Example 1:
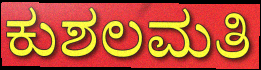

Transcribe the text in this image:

ಕುಶಲಮತಿ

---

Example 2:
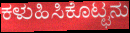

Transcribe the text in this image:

ಕಳುಹಿಸಿಕೊಟ್ಟನು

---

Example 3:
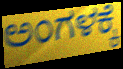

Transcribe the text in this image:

ಅಂಗಳಕ್ಕೆ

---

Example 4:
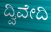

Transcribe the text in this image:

ದ್ವಿವೇದಿ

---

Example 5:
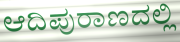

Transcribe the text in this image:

ಆದಿಪುರಾಣದಲ್ಲಿ